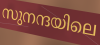
സുനന്ദയിലെ